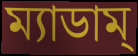
ম্যাডাম্